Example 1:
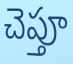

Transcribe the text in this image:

చెప్తూ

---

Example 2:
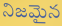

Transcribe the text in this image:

నిజమైన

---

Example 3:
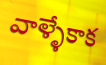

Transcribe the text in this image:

వాళ్ళేకాక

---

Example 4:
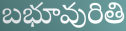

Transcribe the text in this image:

బభూవురితి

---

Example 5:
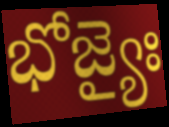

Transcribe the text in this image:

భోజ్యైః